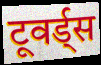
टूवर्ड्स